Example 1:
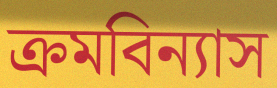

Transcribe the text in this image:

ক্ৰমবিন্যাস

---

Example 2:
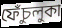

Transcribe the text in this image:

ফেঁচুলুকা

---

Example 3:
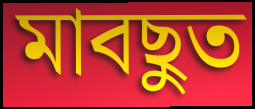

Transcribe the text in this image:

মাবছুত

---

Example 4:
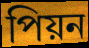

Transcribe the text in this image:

পিয়ন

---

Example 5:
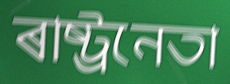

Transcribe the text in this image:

ৰাষ্ট্ৰনেতা